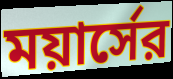
ময়ার্সের